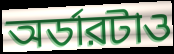
অর্ডারটাও